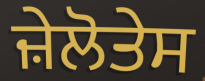
ਜ਼ੇਲੋਤੇਸ